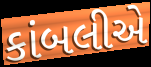
કાંબલીએ